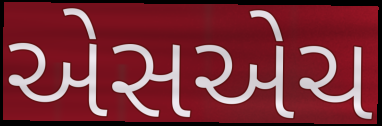
એસએચ